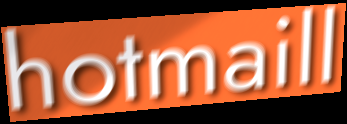
hotmaill